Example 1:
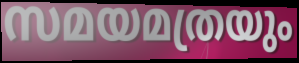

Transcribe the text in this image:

സമയമത്രയും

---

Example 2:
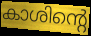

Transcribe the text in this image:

കാശിന്റെ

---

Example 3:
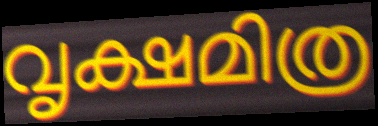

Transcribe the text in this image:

വൃക്ഷമിത്ര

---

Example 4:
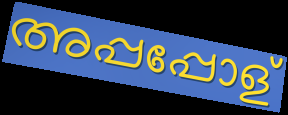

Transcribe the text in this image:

അപ്പപ്പോള്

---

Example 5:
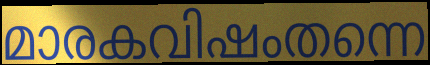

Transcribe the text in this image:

മാരകവിഷംതന്നെ